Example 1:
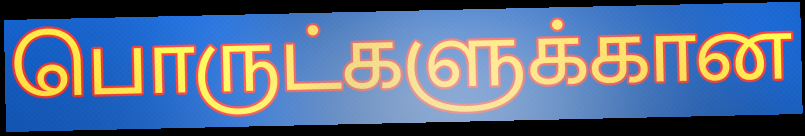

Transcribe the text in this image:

பொருட்களுக்கான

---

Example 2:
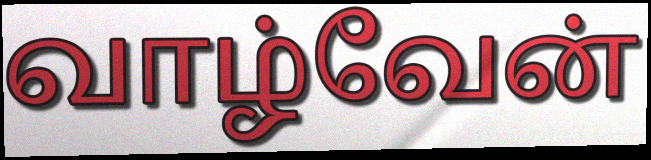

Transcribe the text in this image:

வாழ்வேன்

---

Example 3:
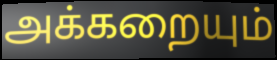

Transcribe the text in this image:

அக்கறையும்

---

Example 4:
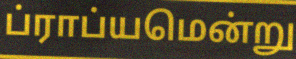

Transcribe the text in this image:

ப்ராப்யமென்று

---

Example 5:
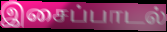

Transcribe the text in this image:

இசைப்பாடல்